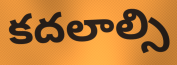
కదలాల్సి